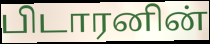
பிடாரனின்